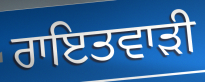
ਰਾਇਤਵਾੜੀ